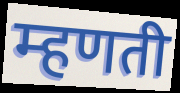
म्हणती